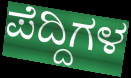
ಪೆದ್ದಿಗಳ